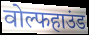
वोल्फहाउंड